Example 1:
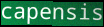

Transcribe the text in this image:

capensis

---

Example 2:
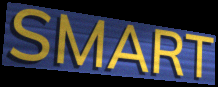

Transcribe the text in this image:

SMART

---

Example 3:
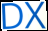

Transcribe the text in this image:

DX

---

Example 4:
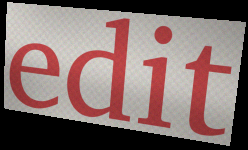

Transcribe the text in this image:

edit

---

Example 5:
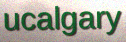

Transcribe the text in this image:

ucalgary